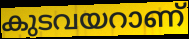
കുടവയറാണ്